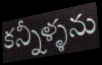
కన్నీళ్ళను